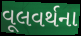
વૂલવર્થના